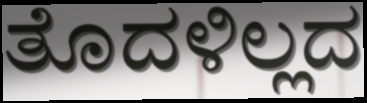
ತೊದಳಿಲ್ಲದ